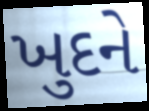
ખુદને